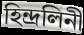
হিন্দ্রলিনী